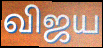
விஜய